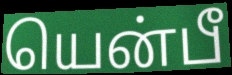
யென்பீ